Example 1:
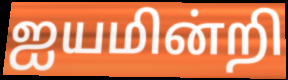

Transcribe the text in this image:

ஐயமின்றி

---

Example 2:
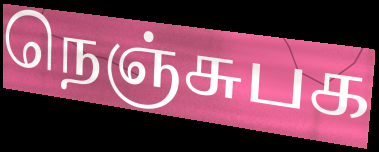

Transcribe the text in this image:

நெஞ்சுபக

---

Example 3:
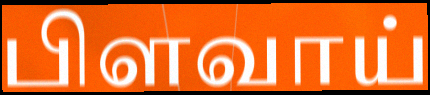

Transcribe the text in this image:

பிளவாய்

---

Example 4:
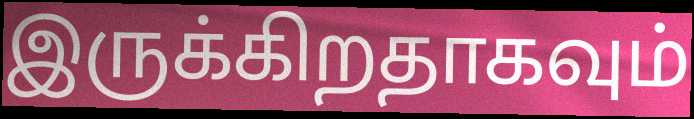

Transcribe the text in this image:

இருக்கிறதாகவும்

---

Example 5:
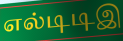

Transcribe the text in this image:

எல்டிடிஇ